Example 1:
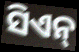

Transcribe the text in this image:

ସିଏନ୍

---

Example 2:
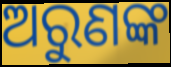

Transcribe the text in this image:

ଅରୁଣଙ୍କ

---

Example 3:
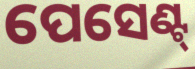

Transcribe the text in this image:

ପେସେଣ୍ଟ୍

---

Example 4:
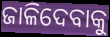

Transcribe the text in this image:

ଜାଳିଦେବାକୁ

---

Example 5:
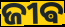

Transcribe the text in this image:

ଜୀଵ